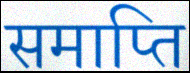
समाप्‍ति